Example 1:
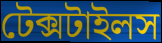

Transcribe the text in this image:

টেক্সটাইলস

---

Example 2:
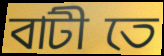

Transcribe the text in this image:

বাটীতে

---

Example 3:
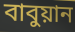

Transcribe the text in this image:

বাবুয়ান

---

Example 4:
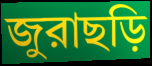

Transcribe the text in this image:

জুরাছড়ি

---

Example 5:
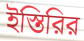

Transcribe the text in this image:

ইস্তিরির